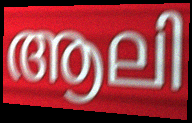
ആലി